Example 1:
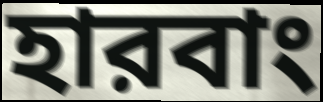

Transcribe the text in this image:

হারবাং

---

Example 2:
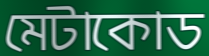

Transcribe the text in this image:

মেটাকোড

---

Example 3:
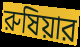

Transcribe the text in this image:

রুষিয়ার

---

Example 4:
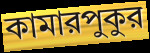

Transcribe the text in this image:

কামারপুকুর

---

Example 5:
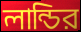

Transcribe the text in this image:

লান্ডির